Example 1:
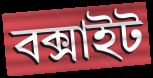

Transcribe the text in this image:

বক্সাইট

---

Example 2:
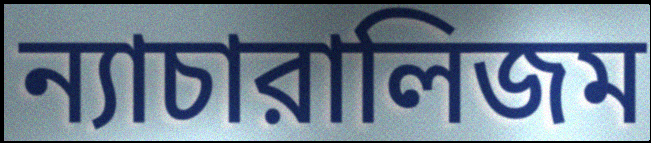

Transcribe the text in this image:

ন্যাচারালিজম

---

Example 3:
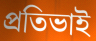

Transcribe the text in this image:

প্রতিভাই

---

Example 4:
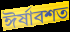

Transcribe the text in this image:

ঈর্ষাবশত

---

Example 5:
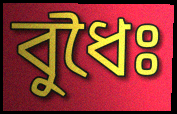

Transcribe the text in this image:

বুধৈঃ